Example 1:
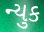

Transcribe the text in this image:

ન્યુક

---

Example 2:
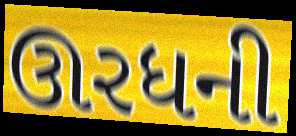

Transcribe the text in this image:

ઊરધની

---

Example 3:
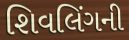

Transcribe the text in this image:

શિવલિંગની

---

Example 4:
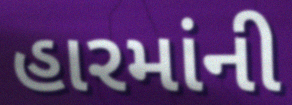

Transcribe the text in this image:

હારમાંની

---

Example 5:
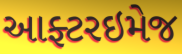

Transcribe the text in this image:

આફ્ટરઇમેજ